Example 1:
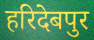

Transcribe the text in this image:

हरिदेबपुर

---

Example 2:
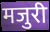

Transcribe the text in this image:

मजुरी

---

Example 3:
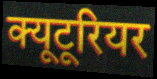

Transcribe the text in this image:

क्यूटूरियर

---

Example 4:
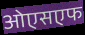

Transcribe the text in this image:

ओएसएफ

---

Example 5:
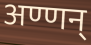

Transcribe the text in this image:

अण्णन्